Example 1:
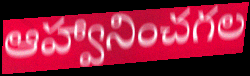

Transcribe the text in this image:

ఆహ్వానించగల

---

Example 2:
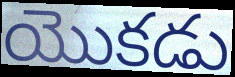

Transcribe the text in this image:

యొకడు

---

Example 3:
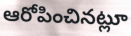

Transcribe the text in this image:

ఆరోపించినట్లూ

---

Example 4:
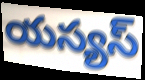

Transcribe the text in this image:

యస్యస్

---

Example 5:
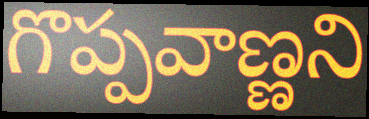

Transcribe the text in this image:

గొప్పవాణ్ణని